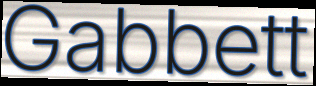
Gabbett